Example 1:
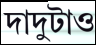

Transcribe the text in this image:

দাদুটাও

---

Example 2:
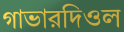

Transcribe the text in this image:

গাভারদিওল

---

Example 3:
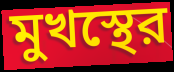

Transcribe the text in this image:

মুখস্থের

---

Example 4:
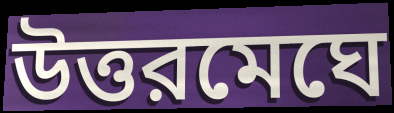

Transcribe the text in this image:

উত্তরমেঘে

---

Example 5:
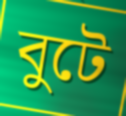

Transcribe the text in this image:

বুটে